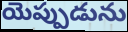
యెప్పుడును